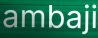
ambaji